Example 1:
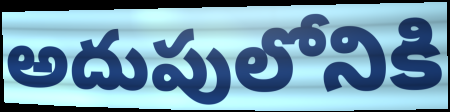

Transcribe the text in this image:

అదుపులోనికి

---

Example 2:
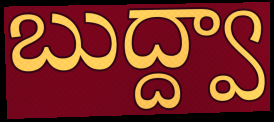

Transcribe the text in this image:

బుద్ద్వా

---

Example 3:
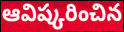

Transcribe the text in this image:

ఆవిష్కరించిన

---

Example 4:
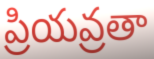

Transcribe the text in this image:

ప్రియవ్రతా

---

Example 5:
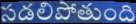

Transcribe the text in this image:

సడలిపోతుంది